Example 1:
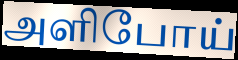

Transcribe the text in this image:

அளிபோய்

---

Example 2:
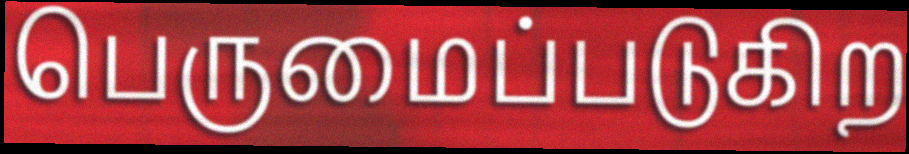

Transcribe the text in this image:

பெருமைப்படுகிற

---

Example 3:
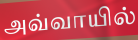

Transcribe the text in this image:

அவ்வாயில்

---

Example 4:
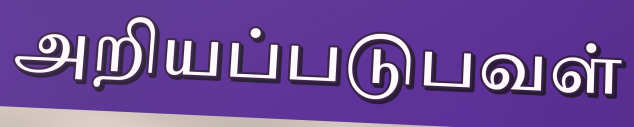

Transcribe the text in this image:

அறியப்படுபவள்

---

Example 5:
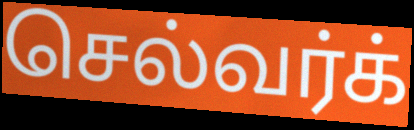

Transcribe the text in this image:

செல்வர்க்